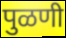
पुळणी